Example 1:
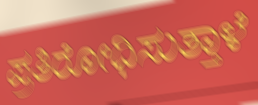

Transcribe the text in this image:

ಪ್ರತಿರೋಧಿಸುತ್ತಾಳೆ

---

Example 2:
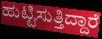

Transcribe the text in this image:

ಹುಟ್ಟಿಸುತ್ತಿದ್ದಾರೆ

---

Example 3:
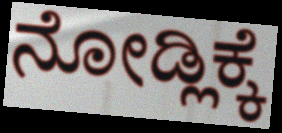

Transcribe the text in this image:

ನೋಡ್ಲಿಕ್ಕೆ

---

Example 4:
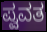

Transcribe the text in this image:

ಪ್ವವತ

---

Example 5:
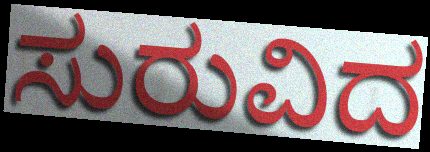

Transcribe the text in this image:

ಸುರುವಿದ